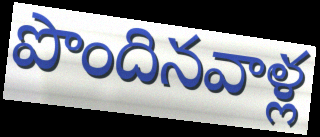
పొందినవాళ్ల